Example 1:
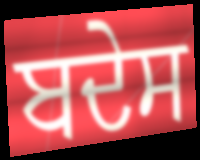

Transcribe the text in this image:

ਬਦੇਸ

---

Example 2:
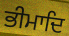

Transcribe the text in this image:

ਭੀਮਾਦਿ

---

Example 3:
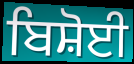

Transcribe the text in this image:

ਬਿਸ਼ੋਈ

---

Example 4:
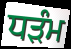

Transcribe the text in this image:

ਧੜੰਮ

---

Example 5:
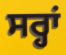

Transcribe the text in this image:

ਸਰ੍ਹਾਂ